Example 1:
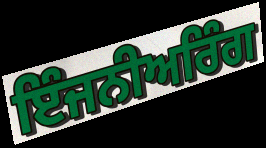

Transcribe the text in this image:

ਇੰਜਨੀਅਰਿੰਗ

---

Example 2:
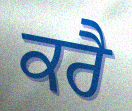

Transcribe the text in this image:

ਕਰੈ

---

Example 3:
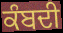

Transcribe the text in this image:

ਕੰਬਦੀ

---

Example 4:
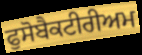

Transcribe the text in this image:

ਫੁਸੋਬੈਕਟੀਰੀਅਮ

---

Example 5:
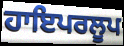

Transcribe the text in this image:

ਹਾਇਪਰਲੂਪ